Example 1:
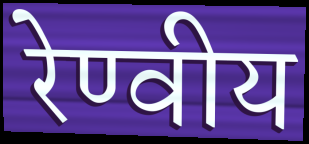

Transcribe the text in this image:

रेण्वीय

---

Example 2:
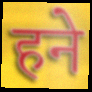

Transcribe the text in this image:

हने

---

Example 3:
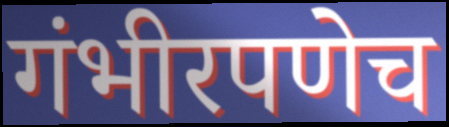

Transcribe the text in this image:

गंभीरपणेच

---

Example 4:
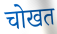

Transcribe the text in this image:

चोखत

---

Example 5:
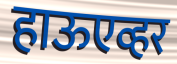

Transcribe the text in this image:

हाऊएव्हर